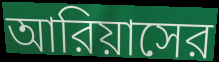
আরিয়াসের